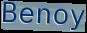
Benoy